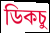
ডিকচু